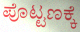
ಪೊಟ್ಟಣಕ್ಕೆ